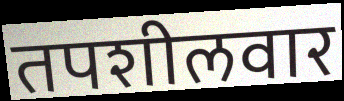
तपशीलवार